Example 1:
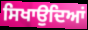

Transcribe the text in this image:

ਸਿਖਾਉਦਿਆਂ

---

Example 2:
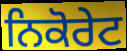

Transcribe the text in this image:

ਨਿਕੋਰੇਟ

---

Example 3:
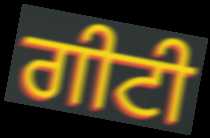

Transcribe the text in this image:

ਗੀਟੀ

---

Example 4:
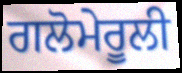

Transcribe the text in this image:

ਗਲੋਮੇਰੂਲੀ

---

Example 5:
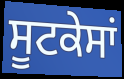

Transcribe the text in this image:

ਸੂਟਕੇਸਾਂ